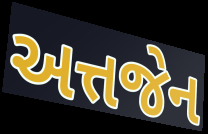
અત્તજેન